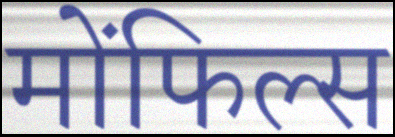
मोंफिल्स